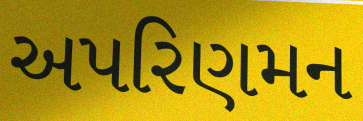
અપરિણમન